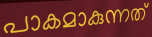
പാകമാകുന്നത്